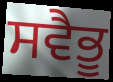
ਸਵੈਭੂ